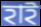
হাই